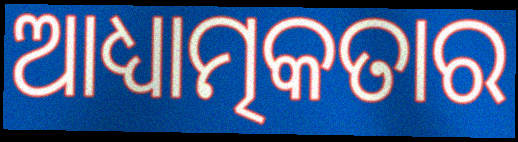
ଆଧ୍ୟାତ୍ମକତାର